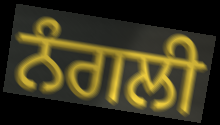
ਨੰਗਲੀ